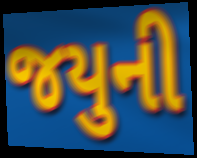
જયુની